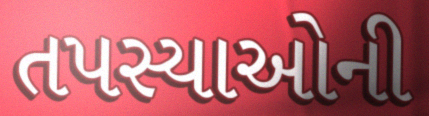
તપસ્યાઓની